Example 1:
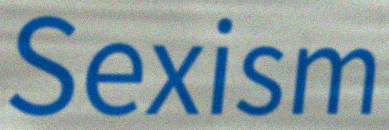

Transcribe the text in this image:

Sexism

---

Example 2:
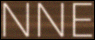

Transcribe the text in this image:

NNE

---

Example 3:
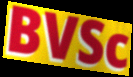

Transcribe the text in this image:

BVSc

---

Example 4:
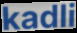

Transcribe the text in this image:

kadli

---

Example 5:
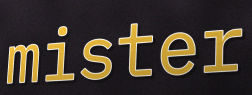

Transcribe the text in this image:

mister